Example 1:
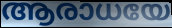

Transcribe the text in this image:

ആരാധയേ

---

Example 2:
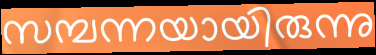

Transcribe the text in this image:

സമ്പന്നയായിരുന്നു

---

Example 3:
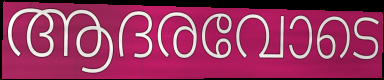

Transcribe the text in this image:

ആദരവോടെ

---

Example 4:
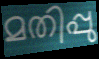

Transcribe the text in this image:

മതിപ്പു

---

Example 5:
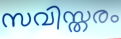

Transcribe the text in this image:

സവിസ്തരം